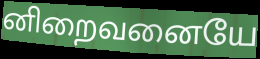
னிறைவனையே